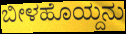
ಬೀಳಹೊಯ್ದನು